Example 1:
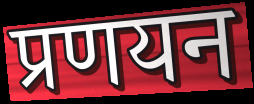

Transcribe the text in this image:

प्रणयन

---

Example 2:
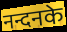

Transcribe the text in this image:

नन्दनके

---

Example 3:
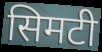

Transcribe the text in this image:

सिमटी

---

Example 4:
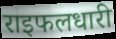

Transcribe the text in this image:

राइफलधारी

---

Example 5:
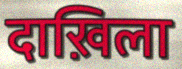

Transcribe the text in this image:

दाख़िला